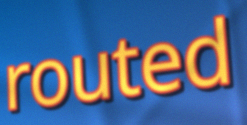
routed